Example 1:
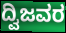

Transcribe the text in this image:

ದ್ವಿಜವರ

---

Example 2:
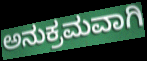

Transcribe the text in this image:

ಅನುಕ್ರಮವಾಗಿ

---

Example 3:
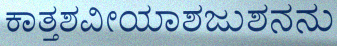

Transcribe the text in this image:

ಕಾತ್ತಶವೀಯಾಶಜುಶನನು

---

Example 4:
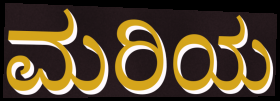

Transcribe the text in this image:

ಮರಿಯ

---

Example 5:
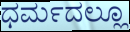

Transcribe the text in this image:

ಧರ್ಮದಲ್ಲೂ